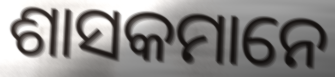
ଶାସକମାନେ